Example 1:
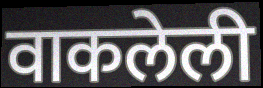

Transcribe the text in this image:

वाकलेली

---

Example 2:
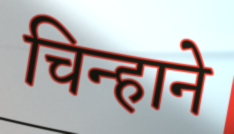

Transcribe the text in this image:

चिन्हाने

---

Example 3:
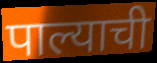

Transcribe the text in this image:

पाल्याची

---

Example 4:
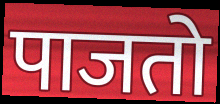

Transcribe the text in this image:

पाजतो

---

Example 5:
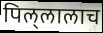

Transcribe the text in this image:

पिल्लालाच